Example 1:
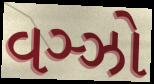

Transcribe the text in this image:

વઞ્ઝો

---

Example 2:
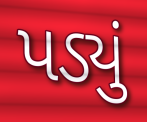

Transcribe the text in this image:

પડ્યું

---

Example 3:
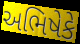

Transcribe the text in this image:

અભિષેકે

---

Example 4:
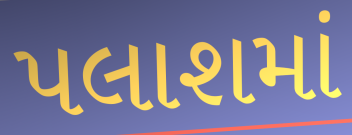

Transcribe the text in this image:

પલાશમાં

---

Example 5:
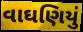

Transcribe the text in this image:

વાઘણિયું